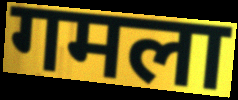
गमला